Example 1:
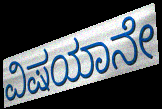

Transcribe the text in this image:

ವಿಷಯಾನೇ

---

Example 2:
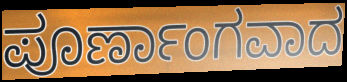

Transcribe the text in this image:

ಪೂರ್ಣಾಂಗವಾದ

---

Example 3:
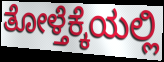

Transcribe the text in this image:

ತೋಳ್ತೆಕ್ಕೆಯಲ್ಲಿ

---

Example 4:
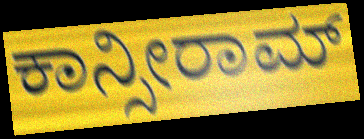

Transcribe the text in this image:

ಕಾನ್ಸೀರಾಮ್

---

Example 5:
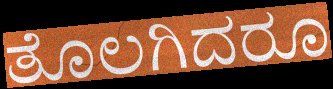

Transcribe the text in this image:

ತೊಲಗಿದರೂ